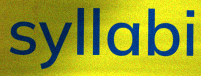
syllabi